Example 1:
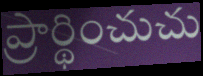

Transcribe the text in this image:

ప్రార్థించుచు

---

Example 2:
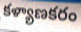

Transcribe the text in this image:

కళ్యాణకరం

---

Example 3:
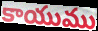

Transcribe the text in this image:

కాయుము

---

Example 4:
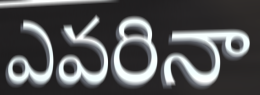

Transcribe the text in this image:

ఎవరినా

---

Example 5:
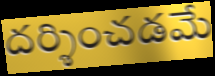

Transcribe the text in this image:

దర్శించడమే